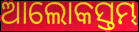
ଆଲୋକସ୍ତମ୍ଭ